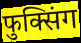
फुक्सिंग